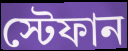
স্টেফান